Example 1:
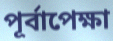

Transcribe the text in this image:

পূর্বাপেক্ষা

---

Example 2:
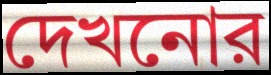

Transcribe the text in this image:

দেখনোর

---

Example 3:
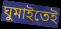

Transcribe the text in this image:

ঘুমাইতেই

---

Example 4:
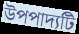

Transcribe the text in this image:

উপপাদ্যটি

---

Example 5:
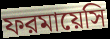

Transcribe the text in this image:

ফরমায়েসি